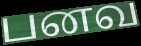
பனவ